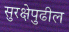
सुरक्षेपुढील